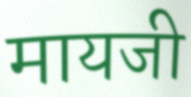
मायजी